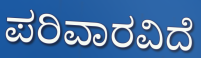
ಪರಿವಾರವಿದೆ